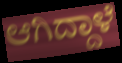
ಆಗಿದ್ದಾಳೆ